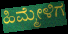
ಹಿಮ್ಮೇಳಿಗ